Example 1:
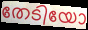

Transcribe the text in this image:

തേടിയോ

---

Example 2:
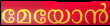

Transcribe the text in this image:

മേയോൻ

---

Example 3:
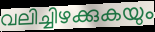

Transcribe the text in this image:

വലിച്ചിഴക്കുകയും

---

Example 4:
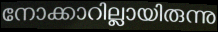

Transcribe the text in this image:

നോക്കാറില്ലായിരുന്നു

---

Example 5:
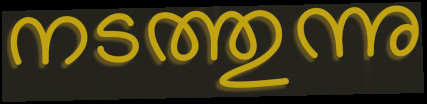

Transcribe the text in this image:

നടത്തുന്നു